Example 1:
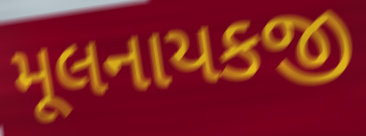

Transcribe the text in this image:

મૂલનાયકજી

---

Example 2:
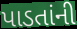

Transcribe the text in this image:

પાડતાંની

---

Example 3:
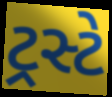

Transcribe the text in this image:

ટ્રસ્ટે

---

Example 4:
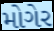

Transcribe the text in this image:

મોગેર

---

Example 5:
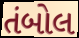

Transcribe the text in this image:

તંબોલ